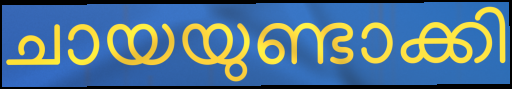
ചായയുണ്ടാക്കി